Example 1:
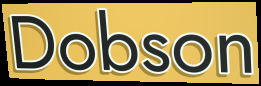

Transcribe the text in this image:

Dobson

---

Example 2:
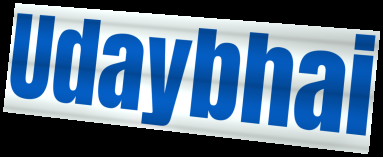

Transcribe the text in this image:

Udaybhai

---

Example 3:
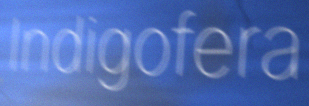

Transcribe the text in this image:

Indigofera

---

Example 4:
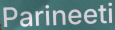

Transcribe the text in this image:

Parineeti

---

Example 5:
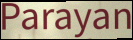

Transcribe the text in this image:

Parayan